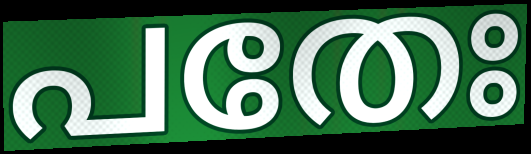
പതേഃ